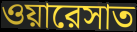
ওয়ারেসাত